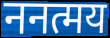
ननत्मय